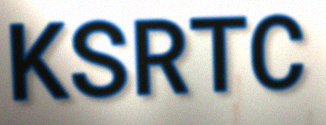
KSRTC